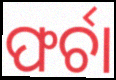
ଫର୍ଚା